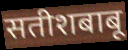
सतीशबाबू